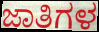
ಜಾತಿಗಳ